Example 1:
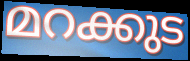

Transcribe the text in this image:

മറക്കുട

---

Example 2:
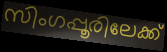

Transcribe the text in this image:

സിംഗപ്പൂരിലേക്ക്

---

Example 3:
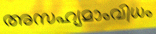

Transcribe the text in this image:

അസഹ്യമാംവിധം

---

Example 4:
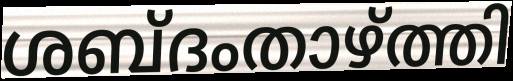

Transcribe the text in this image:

ശബ്ദംതാഴ്ത്തി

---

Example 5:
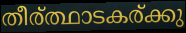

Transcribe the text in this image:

തീര്ത്ഥാടകര്ക്കു